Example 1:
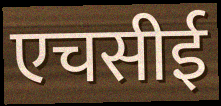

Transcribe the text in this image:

एचसीई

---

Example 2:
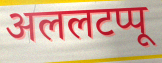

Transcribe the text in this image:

अललटप्पू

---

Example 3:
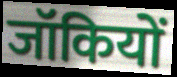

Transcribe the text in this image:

जॉकियों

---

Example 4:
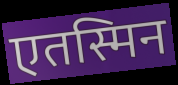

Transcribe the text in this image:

एतस्मिन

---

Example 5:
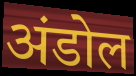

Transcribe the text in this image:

अंडोल